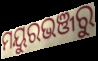
ମୟୁରଭଞ୍ଜରୁ